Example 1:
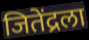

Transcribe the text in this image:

जितेंद्रला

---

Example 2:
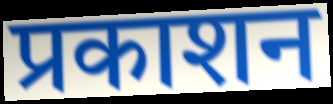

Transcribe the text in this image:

प्रकाशन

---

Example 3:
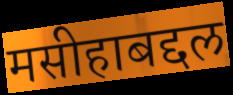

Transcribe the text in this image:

मसीहाबद्दल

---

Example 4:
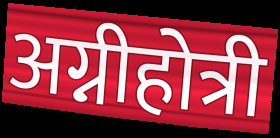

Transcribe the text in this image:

अग्नीहोत्री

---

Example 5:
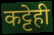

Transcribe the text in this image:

कट्टेही